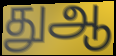
துஆ